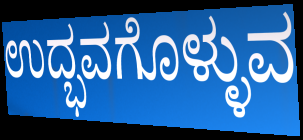
ಉದ್ಭವಗೊಳ್ಳುವ